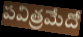
పవిత్రమేదో